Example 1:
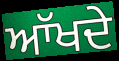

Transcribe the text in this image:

ਆੱਖਦੇ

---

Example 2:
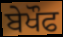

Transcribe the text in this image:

ਬੇਖੌਫ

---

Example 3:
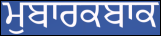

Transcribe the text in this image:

ਮੁਬਾਰਕਬਾਕ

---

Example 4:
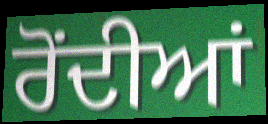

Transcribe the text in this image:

ਰੋਂਦੀਆਂ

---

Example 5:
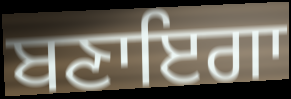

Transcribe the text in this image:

ਬਣਾਇਗਾ